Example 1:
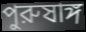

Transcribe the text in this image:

পুরুষাঙ্গ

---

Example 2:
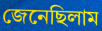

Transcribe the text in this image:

জেনেছিলাম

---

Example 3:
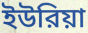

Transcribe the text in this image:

ইউরিয়া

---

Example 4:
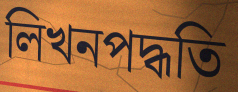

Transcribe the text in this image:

লিখনপদ্ধতি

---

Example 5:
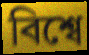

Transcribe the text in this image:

বিশ্বে